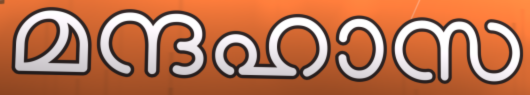
മന്ദഹാസ